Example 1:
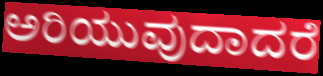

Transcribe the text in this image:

ಅರಿಯುವುದಾದರೆ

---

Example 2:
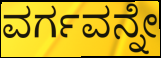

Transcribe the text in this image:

ವರ್ಗವನ್ನೇ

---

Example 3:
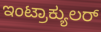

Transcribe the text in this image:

ಇಂಟ್ರಾಕ್ಯುಲರ್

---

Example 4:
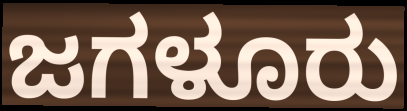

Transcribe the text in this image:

ಜಗಳೂರು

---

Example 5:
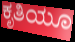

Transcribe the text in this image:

ಕೃತಿಯೂ